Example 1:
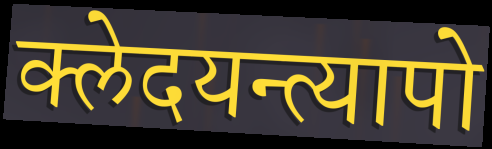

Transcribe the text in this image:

क्लेदयन्त्यापो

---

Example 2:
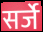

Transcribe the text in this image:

सर्जे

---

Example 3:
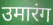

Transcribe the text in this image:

उमारंग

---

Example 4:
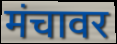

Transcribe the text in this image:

मंचावर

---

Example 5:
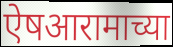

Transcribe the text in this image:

ऐषआरामाच्या